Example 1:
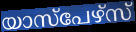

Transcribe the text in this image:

യാസ്പേഴ്സ്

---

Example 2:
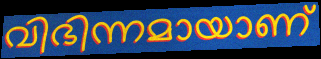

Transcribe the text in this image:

വിഭിന്നമായാണ്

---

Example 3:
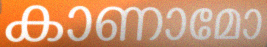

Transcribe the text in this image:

കാണാമോ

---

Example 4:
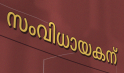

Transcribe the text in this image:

സംവിധായകന്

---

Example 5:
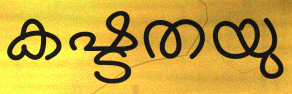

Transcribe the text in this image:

കഷ്ടതയു